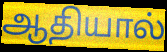
ஆதியால்